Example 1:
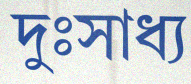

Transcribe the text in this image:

দুঃসাধ্য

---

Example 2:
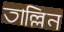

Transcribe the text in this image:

তাল্লিন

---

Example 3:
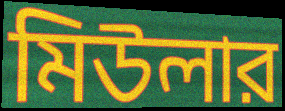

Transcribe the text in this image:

মিউলার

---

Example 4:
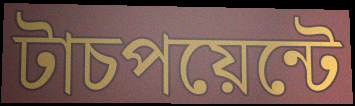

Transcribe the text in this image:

টাচপয়েন্টে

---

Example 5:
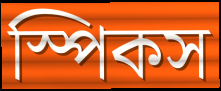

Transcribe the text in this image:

স্পিকস